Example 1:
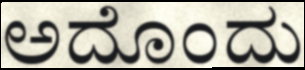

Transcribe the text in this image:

ಅದೊಂದು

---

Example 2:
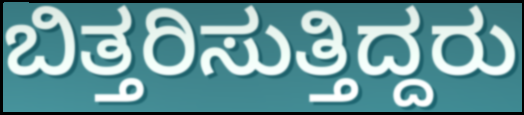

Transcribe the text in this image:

ಬಿತ್ತರಿಸುತ್ತಿದ್ದರು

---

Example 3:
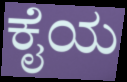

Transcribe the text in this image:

ಕೈಯ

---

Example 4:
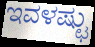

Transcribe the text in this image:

ಇವಳಷ್ಟು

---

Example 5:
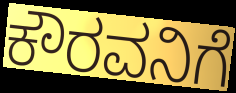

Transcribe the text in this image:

ಕೌರವನಿಗೆ